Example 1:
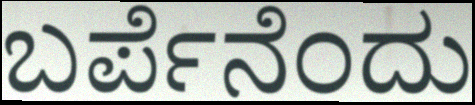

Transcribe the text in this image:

ಬರ್ಪೆನೆಂದು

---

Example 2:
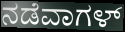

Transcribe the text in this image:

ನಡೆವಾಗಳ್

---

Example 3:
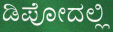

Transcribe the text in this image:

ಡಿಪೋದಲ್ಲಿ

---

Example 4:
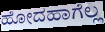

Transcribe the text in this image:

ಹೋದಹಾಗೆಲ್ಲ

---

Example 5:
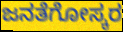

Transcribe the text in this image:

ಜನತೆಗೋಸ್ಕರ